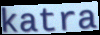
katra